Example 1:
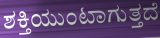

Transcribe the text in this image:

ಶಕ್ತಿಯುಂಟಾಗುತ್ತದೆ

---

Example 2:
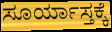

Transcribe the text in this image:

ಸೂರ್ಯಾಸ್ತಕ್ಕೆ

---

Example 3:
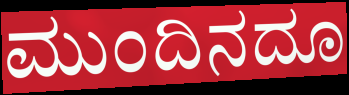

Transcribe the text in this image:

ಮುಂದಿನದೂ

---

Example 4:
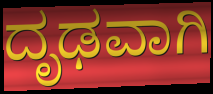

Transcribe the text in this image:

ದೃಢವಾಗಿ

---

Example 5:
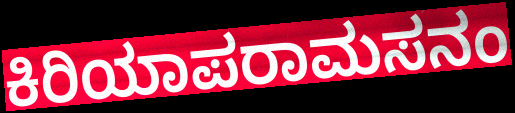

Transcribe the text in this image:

ಕಿರಿಯಾಪರಾಮಸನಂ